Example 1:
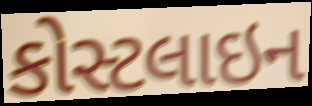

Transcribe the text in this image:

કોસ્ટલાઇન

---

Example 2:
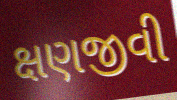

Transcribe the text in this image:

ક્ષણજીવી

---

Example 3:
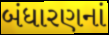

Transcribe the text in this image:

બંધારણનાં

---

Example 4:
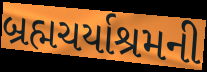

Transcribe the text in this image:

બ્રહ્મચર્યાશ્રમની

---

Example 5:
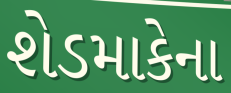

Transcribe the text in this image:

શેડમાકેના